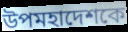
উপমহাদেশকে